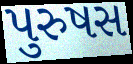
પુરુષસ